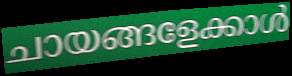
ചായങ്ങളേക്കാൾ